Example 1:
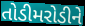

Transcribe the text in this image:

તોડીમરોડીને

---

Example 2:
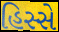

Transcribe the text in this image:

હિસ્સે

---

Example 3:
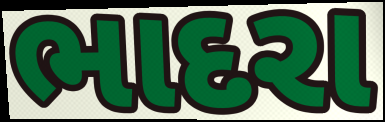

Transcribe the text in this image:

ભાદરા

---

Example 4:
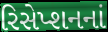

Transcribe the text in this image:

રિસેપ્શનનાં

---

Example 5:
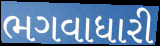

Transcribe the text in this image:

ભગવાધારી